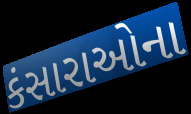
કંસારાઓના